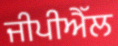
ਜੀਪੀਐੱਲ